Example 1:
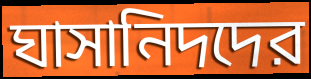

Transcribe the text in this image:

ঘাসানিদদের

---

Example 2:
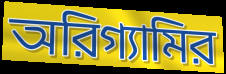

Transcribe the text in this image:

অরিগ্যামির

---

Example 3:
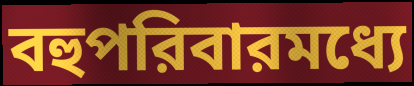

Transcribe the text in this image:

বহুপরিবারমধ্যে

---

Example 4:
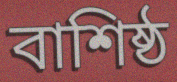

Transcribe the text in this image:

বাশিষ্ঠ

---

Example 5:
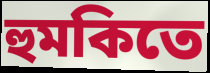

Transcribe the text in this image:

হুমকিতে